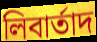
লিবার্তাদ